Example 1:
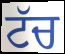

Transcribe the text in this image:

ਟੱਚ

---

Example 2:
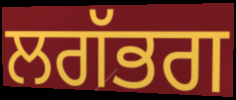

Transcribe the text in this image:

ਲਗੱਭਗ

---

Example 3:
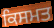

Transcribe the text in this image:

ਕਿਸਮਤ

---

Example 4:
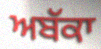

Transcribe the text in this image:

ਅਬੱਕਾ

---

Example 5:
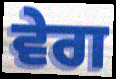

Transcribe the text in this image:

ਵੇਗ